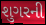
શુગરની